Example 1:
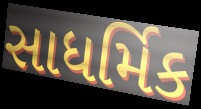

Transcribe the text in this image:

સાધર્મિક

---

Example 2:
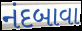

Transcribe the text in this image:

નંદબાવા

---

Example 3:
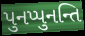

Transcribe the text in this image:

પુનપ્પુનન્તિ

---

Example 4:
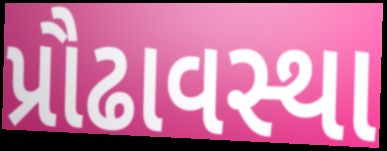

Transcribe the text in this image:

પ્રૌઢાવસ્થા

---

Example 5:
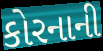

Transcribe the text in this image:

કોરનાની